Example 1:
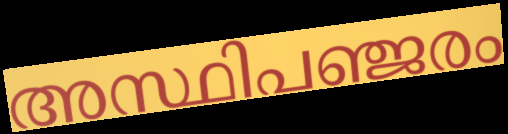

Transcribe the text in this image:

അസ്ഥിപഞ്ജരം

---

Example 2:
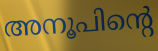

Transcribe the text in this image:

അനൂപിന്റെ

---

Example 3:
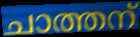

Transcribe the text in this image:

ചാത്തന്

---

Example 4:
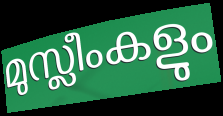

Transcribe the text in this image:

മുസ്ലീംകളും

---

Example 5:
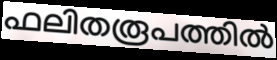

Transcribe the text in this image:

ഫലിതരൂപത്തിൽ